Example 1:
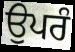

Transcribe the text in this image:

ਉਪਰੰ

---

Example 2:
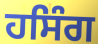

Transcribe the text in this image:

ਹਸਿੰਗ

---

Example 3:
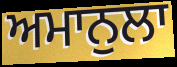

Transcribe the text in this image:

ਅਮਾਨੁਲਾ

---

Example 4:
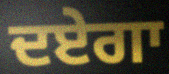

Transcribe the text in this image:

ਦਏਗਾ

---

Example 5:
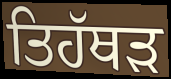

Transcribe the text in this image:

ਤਿਹੱਥੜ